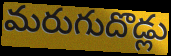
మరుగుదొడ్లు